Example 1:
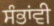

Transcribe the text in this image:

ਸੰਭਾਂਵੀ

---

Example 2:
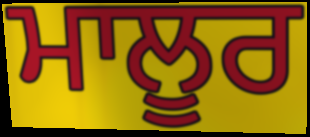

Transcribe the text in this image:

ਮਾਲੂਰ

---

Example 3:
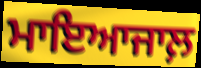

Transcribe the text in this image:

ਮਾਇਆਜਾਲ਼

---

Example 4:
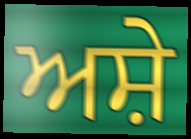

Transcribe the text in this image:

ਅਸ਼ੇ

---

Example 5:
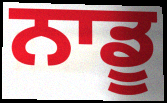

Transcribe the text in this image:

ਨਾਡੂ